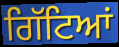
ਗਿੱਟਿਆਂ